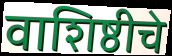
वाशिष्ठीचे